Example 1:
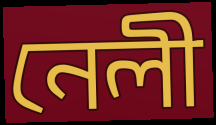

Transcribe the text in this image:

নেলী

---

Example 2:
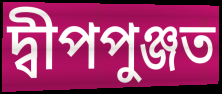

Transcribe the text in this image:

দ্বীপপুঞ্জত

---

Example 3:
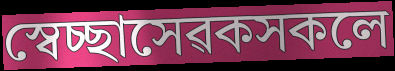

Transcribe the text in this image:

স্বেচ্ছাসেৱকসকলে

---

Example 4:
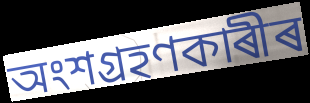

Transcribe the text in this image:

অংশগ্ৰহণকাৰীৰ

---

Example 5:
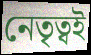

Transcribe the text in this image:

নেতৃত্বই